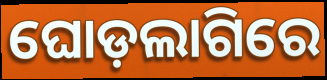
ଘୋଡ଼ଲାଗିରେ